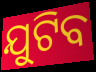
ଯୁଟିବ